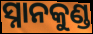
ସ୍ନାନକୁଣ୍ଡ